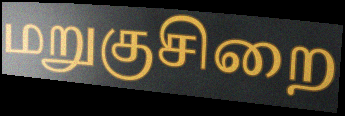
மறுகுசிறை